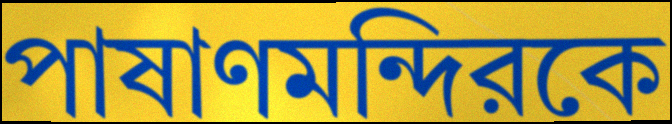
পাষাণমন্দিরকে